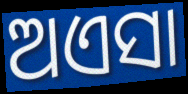
ଅଏସା